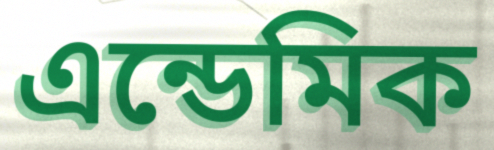
এন্ডেমিক